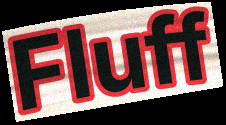
Fluff